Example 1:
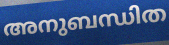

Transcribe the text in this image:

അനുബന്ധിത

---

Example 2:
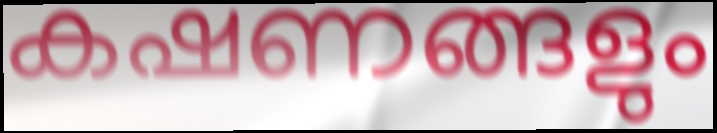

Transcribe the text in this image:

കഷണങ്ങളും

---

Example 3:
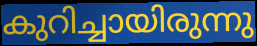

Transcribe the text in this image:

കുറിച്ചായിരുന്നു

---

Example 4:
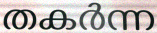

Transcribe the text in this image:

തകർന്ന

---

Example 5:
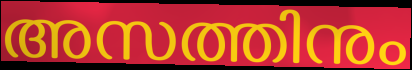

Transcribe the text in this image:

അസത്തിനും